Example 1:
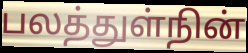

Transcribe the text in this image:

பலத்துள்நின்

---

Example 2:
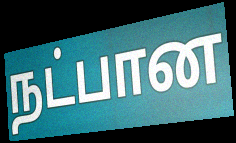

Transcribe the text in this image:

நட்பான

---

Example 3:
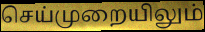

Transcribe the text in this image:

செய்முறையிலும்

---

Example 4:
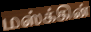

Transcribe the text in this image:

மஸ்க்கின்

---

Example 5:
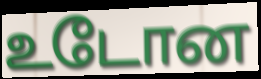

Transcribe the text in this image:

உடோன